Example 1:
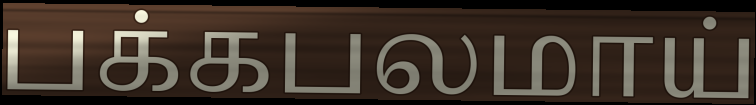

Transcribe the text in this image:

பக்கபலமாய்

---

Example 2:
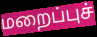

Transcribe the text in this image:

மறைப்புச்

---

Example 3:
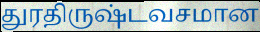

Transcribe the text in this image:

துரதிருஷ்டவசமான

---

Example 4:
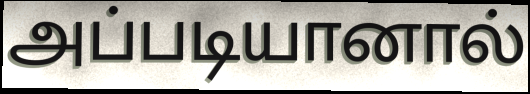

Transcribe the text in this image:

அப்படியானால்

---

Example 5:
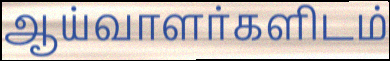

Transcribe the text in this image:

ஆய்வாளர்களிடம்